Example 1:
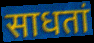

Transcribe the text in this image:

साधतां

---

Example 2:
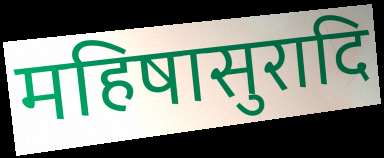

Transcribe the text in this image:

महिषासुरादि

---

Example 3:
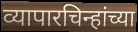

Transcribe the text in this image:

व्यापारचिन्हांच्या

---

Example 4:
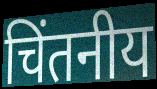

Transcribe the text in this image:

चिंतनीय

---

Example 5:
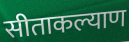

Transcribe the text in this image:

सीताकल्याण